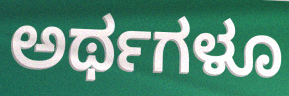
ಅರ್ಥಗಳೂ